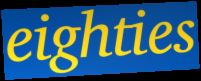
eighties